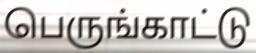
பெருங்காட்டு